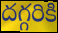
దగ్గరికి